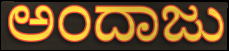
ಅಂದಾಜು